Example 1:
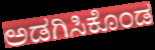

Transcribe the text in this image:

ಅಡಗಿಸಿಕೊಂಡ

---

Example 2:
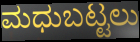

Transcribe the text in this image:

ಮಧುಬಟ್ಟಲು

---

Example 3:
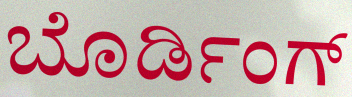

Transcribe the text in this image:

ಬೊರ್ಡಿಂಗ್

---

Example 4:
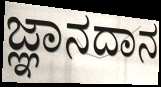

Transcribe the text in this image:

ಜ್ಞಾನದಾನ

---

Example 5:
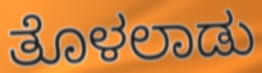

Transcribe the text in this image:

ತೊಳಲಾಡು